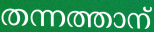
തന്നത്താന്